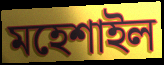
মহেশাইল